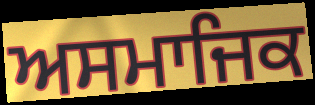
ਅਸਮਾਜਿਕ